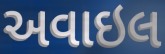
અવાઇલ